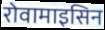
रोवामाइसिन